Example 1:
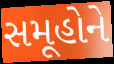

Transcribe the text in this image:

સમૂહોને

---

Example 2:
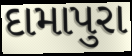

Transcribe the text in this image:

દામાપુરા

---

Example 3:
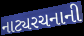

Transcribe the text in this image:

નાટ્યરચનાની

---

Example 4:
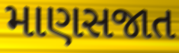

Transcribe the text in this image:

માણસજાત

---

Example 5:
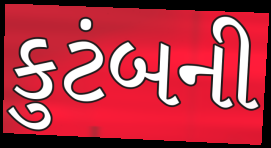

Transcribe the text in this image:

કુટંબની